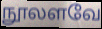
நூலளவே